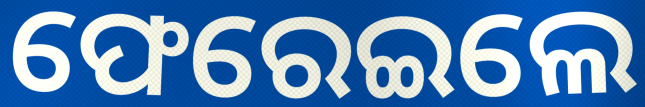
ଫେରେଇଲେ